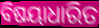
ବିଷୟାଧାରିତ